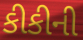
કીકીની